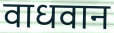
वाधवान